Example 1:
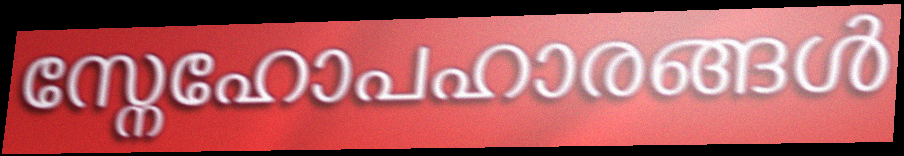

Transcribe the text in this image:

സ്നേഹോപഹാരങ്ങൾ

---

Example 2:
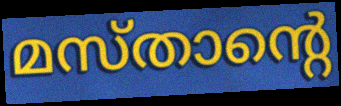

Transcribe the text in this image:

മസ്താന്റെ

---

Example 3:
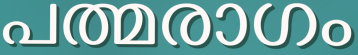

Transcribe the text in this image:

പത്മരാഗം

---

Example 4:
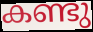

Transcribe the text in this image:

കണ്ടു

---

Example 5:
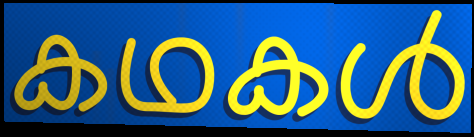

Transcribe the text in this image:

കഥകൾ